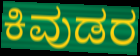
ಕಿವುಡರ